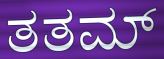
ತತಮ್